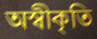
অস্বীকৃতি